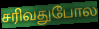
சரிவதுபோல